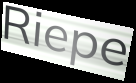
Riepe